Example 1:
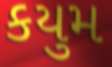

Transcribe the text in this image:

કયુમ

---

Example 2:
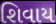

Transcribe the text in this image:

શિવાય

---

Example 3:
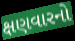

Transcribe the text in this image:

ક્ષણવારનો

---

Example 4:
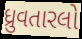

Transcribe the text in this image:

ધ્રુવતારલો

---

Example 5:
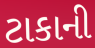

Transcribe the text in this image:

ટાકાની